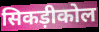
सिकड़ीकोल